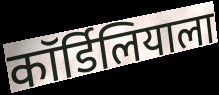
कॉर्डिलियाला